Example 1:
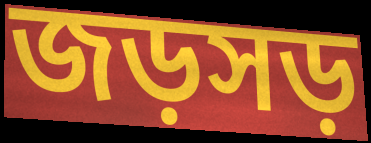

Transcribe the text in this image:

জড়সড়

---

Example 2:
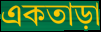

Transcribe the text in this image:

একতাড়া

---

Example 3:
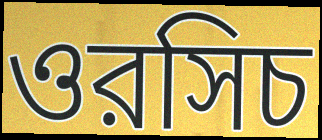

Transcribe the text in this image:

ওরসিচ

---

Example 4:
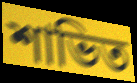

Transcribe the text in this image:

শাভিত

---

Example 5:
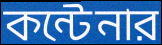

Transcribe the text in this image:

কন্টেনার